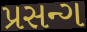
પ્રસન્ગ